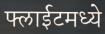
फ्लाईटमध्ये